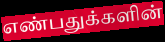
எண்பதுக்களின்